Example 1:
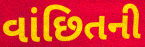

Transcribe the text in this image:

વાંછિતની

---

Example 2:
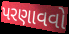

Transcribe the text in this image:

પરણાવવો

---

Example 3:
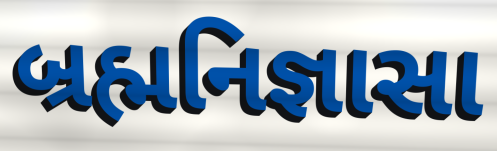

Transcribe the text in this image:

બ્રહ્મનિજ્ઞાસા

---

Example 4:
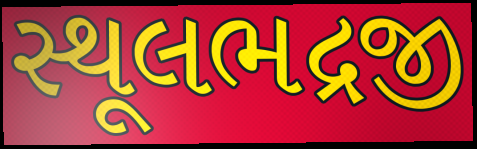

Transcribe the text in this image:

સ્થૂલભદ્રજી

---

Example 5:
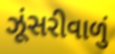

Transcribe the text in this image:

ઝૂંસરીવાળું